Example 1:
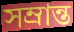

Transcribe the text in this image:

সম্রান্ত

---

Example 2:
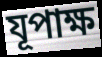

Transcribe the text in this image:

যূপাক্ষ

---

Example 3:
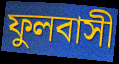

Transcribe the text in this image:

ফুলবাসী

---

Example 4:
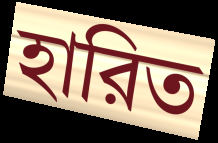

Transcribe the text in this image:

হারিত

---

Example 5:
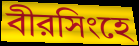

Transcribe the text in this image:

বীরসিংহে